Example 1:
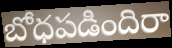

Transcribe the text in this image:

బోధపడిందిరా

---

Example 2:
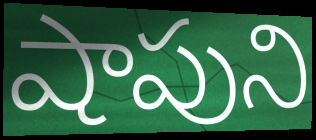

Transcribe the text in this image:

షాపుని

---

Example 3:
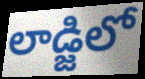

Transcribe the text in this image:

లాడ్జిలో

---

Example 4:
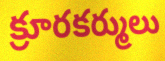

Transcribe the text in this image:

క్రూరకర్ములు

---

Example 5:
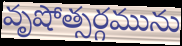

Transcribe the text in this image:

వృషోత్సర్గమును